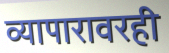
व्यापारावरही